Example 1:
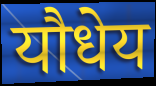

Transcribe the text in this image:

यौधेय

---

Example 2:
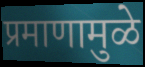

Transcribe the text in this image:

प्रमाणामुळे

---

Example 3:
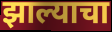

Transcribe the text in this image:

झाल्याचा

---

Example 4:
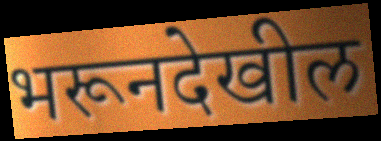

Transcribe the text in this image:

भरूनदेखील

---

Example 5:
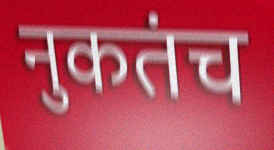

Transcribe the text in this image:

नुकतंच